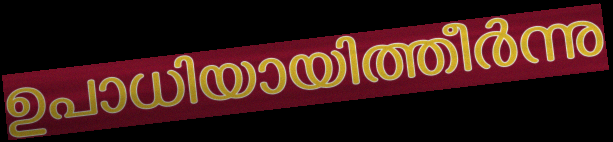
ഉപാധിയായിത്തീർന്നു